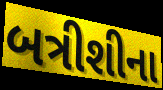
બત્રીશીના